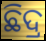
ଛିଦ୍ର